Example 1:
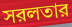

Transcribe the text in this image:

সরলতার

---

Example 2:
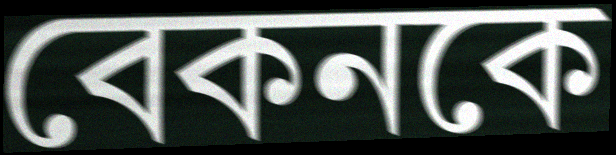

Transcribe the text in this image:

বেকনকে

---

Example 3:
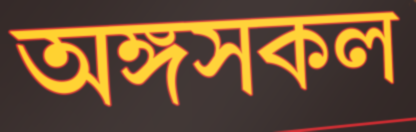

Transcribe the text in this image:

অঙ্গসকল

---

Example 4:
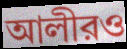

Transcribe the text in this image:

আলীরও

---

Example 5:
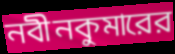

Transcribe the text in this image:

নবীনকুমারের